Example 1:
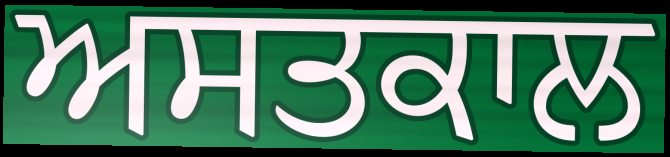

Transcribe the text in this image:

ਅਸਤਕਾਲ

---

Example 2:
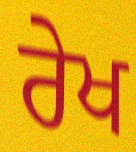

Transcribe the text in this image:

ਰੇਖ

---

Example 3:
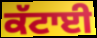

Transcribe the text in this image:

ਕੱਟਾਈ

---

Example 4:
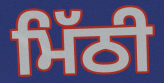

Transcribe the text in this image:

ਮਿੱਠੀ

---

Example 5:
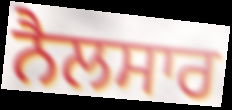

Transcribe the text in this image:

ਨੈਲਸਾਰ